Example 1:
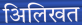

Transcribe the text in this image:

अिलिखत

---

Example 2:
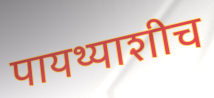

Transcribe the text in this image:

पायथ्याशीच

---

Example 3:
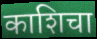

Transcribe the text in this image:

काशिचा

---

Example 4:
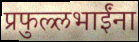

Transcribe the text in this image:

प्रफुल्लभाईंना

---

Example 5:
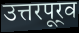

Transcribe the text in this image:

उत्तरपूर्व